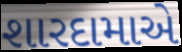
શારદામાએ